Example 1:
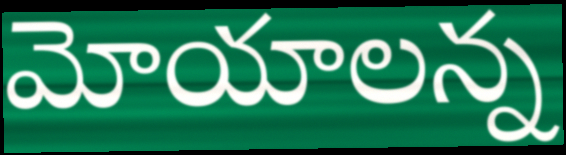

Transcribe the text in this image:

మోయాలన్న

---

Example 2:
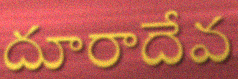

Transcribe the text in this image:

దూరాదేవ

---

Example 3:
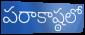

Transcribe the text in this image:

పరాకాష్ఠలో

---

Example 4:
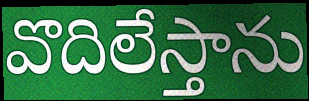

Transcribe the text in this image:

వొదిలేస్తాను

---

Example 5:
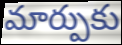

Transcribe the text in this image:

మార్పుకు